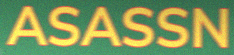
ASASSN